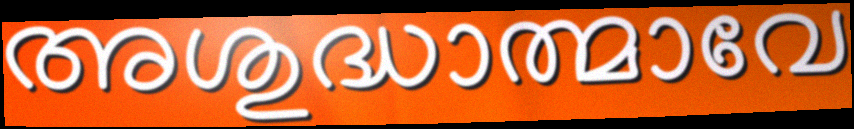
അശുദ്ധാത്മാവേ